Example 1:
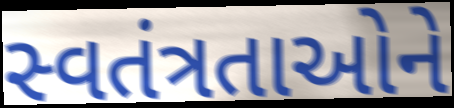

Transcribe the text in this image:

સ્વતંત્રતાઓને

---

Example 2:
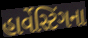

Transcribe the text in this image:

હાર્વેસ્ટિંગના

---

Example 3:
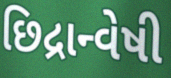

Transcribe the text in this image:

છિદ્રાન્વેષી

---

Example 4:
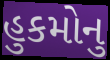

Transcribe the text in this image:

હુકમોનુ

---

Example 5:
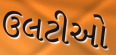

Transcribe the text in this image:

ઉલટીઓ